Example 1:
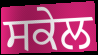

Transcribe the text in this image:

ਸਕੇਲ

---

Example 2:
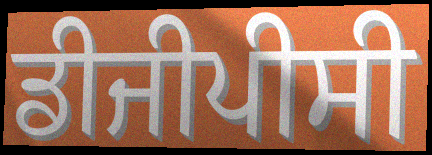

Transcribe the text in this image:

ਡੀਜੀਪੀਸੀ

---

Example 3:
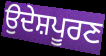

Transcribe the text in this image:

ਉਦੇਸ਼ਪੂਰਣ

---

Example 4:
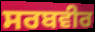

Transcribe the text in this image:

ਸਰਬਵੀਰ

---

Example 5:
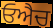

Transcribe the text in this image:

ਓਐਚ